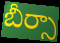
బీర్సా